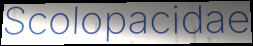
Scolopacidae